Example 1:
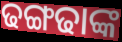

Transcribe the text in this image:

ଢଙ୍ଗଢାଙ୍କ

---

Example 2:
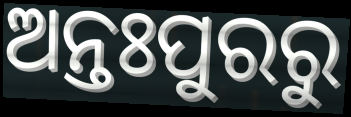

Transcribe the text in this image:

ଅନ୍ତଃପୁରରୁ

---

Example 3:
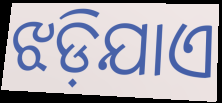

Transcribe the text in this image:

ଝଡ଼ିଯାଏ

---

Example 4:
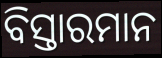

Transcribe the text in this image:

ବିସ୍ତାରମାନ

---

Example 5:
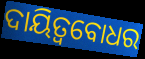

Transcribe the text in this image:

ଦାୟିତ୍ବବୋଧର